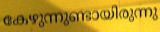
കേഴുന്നുണ്ടായിരുന്നു